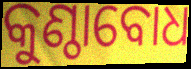
କୁଣ୍ଠାବୋଧ